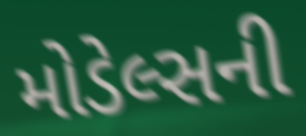
મોડેલ્સની